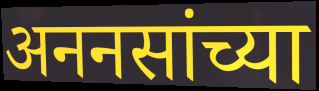
अननसांच्या